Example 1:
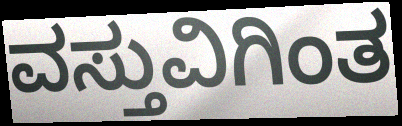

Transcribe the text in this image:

ವಸ್ತುವಿಗಿಂತ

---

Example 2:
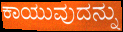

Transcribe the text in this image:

ಕಾಯುವುದನ್ನು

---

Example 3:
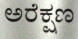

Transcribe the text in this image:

ಅರೆಕ್ಷಣ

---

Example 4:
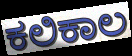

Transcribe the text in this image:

ಕಲಿಕಾಲ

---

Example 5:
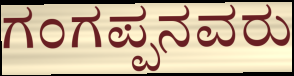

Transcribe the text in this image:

ಗಂಗಪ್ಪನವರು